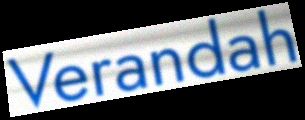
Verandah